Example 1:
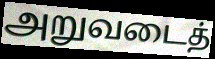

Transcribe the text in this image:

அறுவடைத்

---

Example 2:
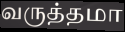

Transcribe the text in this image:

வருத்தமா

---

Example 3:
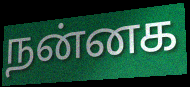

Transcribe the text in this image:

நன்னக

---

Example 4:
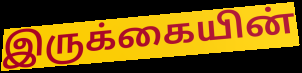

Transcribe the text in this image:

இருக்கையின்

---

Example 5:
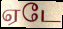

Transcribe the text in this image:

ஏடே